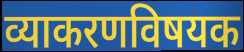
व्याकरणविषयक